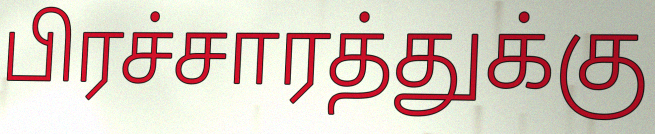
பிரச்சாரத்துக்கு